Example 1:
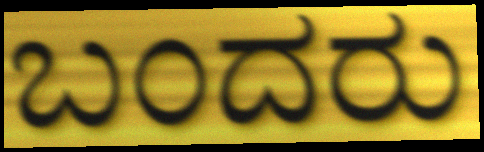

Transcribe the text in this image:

ಬಂದರು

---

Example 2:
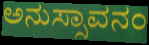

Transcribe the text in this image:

ಅನುಸ್ಸಾವನಂ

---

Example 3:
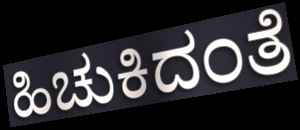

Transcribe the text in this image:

ಹಿಚುಕಿದಂತೆ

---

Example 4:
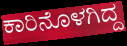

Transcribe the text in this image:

ಕಾರಿನೊಳಗಿದ್ದ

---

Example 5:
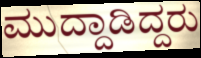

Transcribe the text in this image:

ಮುದ್ದಾಡಿದ್ದರು